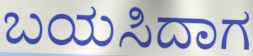
ಬಯಸಿದಾಗ